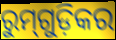
ରୁମ୍‌ଗୁଡ଼ିକର